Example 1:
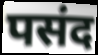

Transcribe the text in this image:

पसंद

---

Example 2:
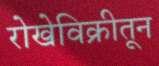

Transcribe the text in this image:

रोखेविक्रीतून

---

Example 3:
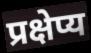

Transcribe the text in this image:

प्रक्षेप्य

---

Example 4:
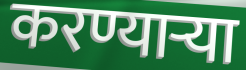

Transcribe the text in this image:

करण्यार्‍या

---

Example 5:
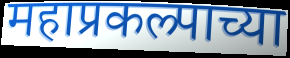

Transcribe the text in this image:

महाप्रकल्पाच्या